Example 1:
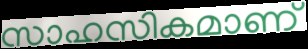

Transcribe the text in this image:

സാഹസികമാണ്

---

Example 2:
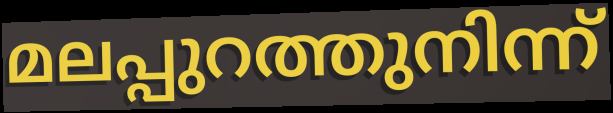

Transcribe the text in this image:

മലപ്പുറത്തുനിന്ന്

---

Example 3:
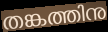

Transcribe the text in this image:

തങ്കത്തിനു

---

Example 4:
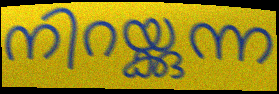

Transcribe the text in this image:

നിറയ്ക്കുന്ന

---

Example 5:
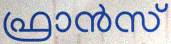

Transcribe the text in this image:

ഫ്രാൻസ്